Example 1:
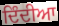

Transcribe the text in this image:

ਦਿੰਦੀਆ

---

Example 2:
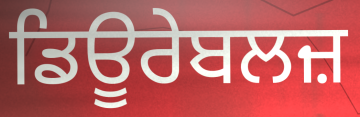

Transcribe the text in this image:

ਡਿਊਰੇਬਲਜ਼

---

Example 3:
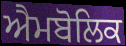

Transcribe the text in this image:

ਐਮਬੋਲਿਕ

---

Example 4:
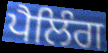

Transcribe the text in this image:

ਪੈਲਿੰਗ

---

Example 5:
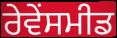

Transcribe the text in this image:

ਰੇਵੇਂਸਮੀਡ